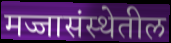
मज्जासंस्थेतील